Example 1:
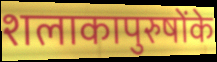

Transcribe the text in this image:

शलाकापुरुषोंके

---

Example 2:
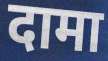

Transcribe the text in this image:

दामा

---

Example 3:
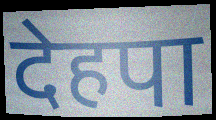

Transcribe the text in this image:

देहपा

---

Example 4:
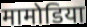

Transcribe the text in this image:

मामोडिया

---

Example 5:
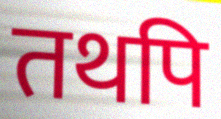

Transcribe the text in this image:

तथपि